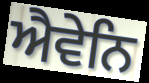
ਐਵੇਨਿ